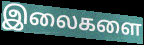
இலைகளை